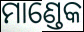
ମାଣ୍ଡେକ